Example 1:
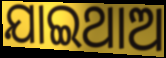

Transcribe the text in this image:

ଯାଇଥାଅ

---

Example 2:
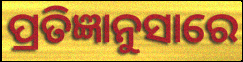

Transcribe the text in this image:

ପ୍ରତିଜ୍ଞାନୁସାରେ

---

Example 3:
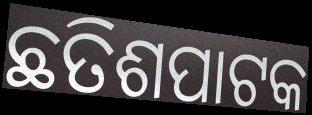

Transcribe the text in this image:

ଛତିଶପାଟକ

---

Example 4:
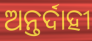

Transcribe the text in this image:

ଅନ୍ତର୍ଦାହୀ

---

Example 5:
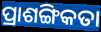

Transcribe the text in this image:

ପ୍ରାଶଙ୍ଗିକତା